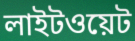
লাইটওয়েট